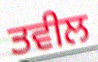
ਤਵੀਲ